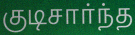
குடிசார்ந்த